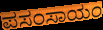
ಪಸಂಸಾಯಂ